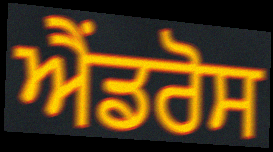
ਐਂਡਰੋਸ